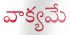
వాక్యమే